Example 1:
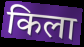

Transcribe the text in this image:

किला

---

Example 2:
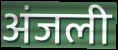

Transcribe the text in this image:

अंजली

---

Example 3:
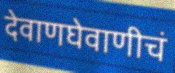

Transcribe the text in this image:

देवाणघेवाणीचं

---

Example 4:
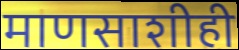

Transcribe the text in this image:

माणसाशीही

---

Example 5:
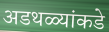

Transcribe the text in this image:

अडथळ्यांकडे